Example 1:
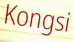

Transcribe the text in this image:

Kongsi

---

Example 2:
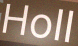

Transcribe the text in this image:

Holl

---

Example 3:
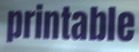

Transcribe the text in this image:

printable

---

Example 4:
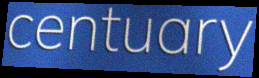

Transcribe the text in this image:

centuary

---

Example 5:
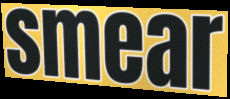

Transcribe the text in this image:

smear